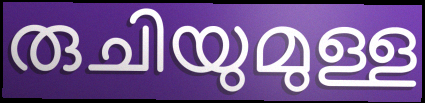
രുചിയുമുള്ള